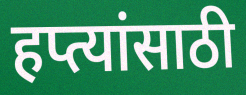
हप्त्यांसाठी